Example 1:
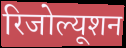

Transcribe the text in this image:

रिजोल्यूशन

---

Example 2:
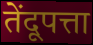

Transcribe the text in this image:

तेंदूपत्ता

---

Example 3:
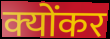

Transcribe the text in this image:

क्‍योंकर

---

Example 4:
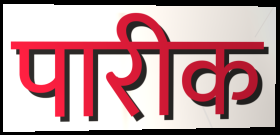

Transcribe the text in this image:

पारीक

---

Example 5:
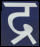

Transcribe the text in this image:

द्र